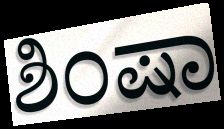
ಶಿಂಷಾ